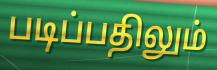
படிப்பதிலும்